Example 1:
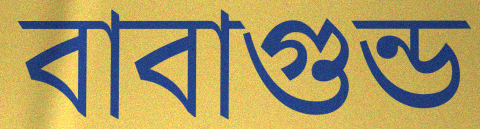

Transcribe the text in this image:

বাবাগুন্ড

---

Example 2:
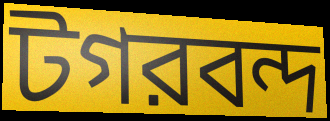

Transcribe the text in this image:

টগরবন্দ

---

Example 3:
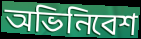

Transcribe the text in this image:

অভিনিবেশ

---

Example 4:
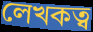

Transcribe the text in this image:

লেখকত্ব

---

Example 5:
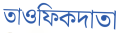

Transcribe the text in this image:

তাওফিকদাতা